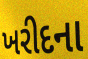
ખરીદના